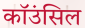
कॉउंसिल